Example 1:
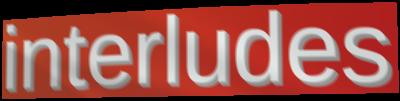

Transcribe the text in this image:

interludes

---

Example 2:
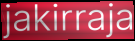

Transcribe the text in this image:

jakirraja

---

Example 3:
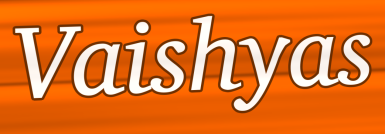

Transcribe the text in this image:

Vaishyas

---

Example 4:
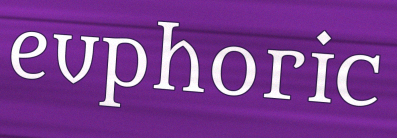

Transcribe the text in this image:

euphoric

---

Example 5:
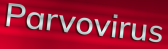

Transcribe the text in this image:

Parvovirus